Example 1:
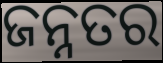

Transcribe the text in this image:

ଜନ୍ନତର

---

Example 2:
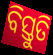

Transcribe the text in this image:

ବିସ୍ତୁତି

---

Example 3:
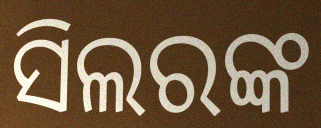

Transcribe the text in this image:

ସିଲରଙ୍କ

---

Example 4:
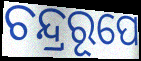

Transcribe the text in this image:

ଚନ୍ଦ୍ରରୂପେ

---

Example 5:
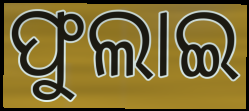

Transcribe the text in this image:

ଫୁଲାଇ